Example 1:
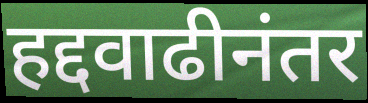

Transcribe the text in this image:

हद्दवाढीनंतर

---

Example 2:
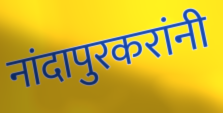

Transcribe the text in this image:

नांदापुरकरांनी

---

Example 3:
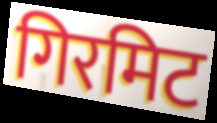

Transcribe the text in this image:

गिरमिट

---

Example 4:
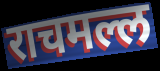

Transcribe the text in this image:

राचमल्ल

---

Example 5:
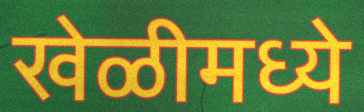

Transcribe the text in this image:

खेळीमध्ये